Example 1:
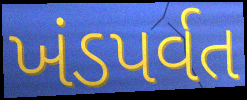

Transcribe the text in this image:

ખંડપર્વત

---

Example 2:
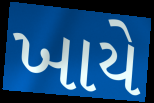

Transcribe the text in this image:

ખાયે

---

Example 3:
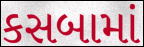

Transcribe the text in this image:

કસબામાં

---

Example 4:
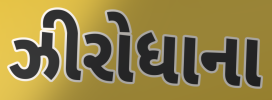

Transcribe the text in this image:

ઝીરોધાના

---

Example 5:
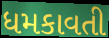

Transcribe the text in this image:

ધમકાવતી